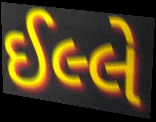
ઈલ્લે